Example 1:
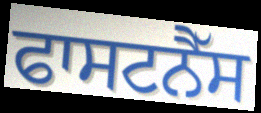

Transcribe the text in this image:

ਫਾਸਟਨੈੱਸ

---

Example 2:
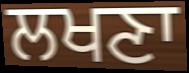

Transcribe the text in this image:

ਲਖਣਾ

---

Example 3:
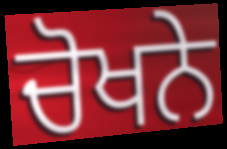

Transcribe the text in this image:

ਚੋਖਨੇ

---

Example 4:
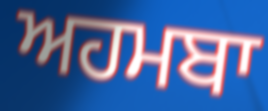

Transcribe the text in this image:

ਅਹਮਬਾ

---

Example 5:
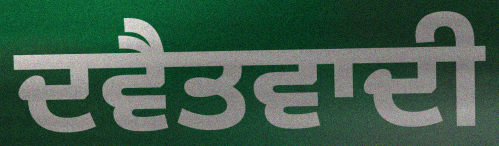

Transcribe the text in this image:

ਦਵੈਤਵਾਦੀ